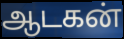
ஆடகன்